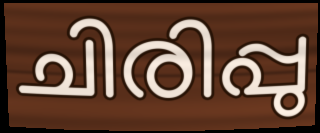
ചിരിപ്പു